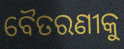
ବୈତରଣୀକୁ